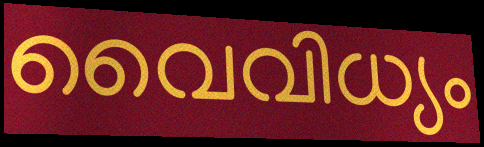
വൈവിധ്യം